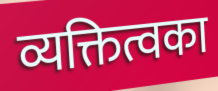
व्यक्तित्वका